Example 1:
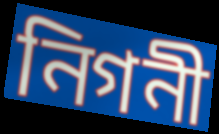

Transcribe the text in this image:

নিগনী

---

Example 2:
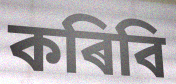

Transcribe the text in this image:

কৰিবি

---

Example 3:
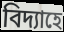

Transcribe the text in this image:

বিদ্যাহে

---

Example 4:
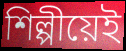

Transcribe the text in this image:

শিল্পীয়েই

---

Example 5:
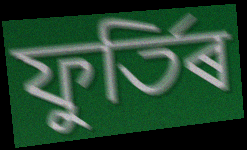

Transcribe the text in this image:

ফুৰ্তিৰ